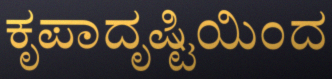
ಕೃಪಾದೃಷ್ಟಿಯಿಂದ